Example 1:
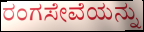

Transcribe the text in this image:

ರಂಗಸೇವೆಯನ್ನು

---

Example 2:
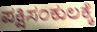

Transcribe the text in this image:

ಪಕ್ಷಿಸಂಕುಲಕ್ಕೆ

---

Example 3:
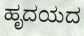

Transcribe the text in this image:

ಹೃದಯದ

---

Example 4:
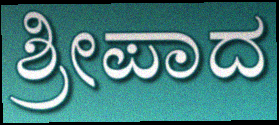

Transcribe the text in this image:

ಶ್ರೀಪಾದ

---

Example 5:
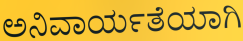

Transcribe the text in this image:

ಅನಿವಾರ್ಯತೆಯಾಗಿ